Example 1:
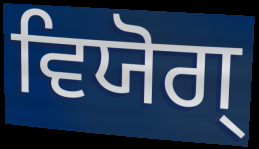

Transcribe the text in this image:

ਵਿਯੋਗ੍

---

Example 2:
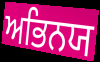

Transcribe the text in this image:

ਅਭਿਨਯ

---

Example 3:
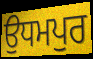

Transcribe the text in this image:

ਉਧਮਪੁਰ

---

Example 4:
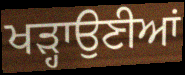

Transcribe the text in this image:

ਖੜ੍ਹਾਉਣੀਆਂ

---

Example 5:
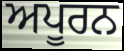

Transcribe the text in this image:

ਅਪੂਰਨ